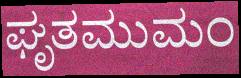
ಘೃತಮುಮಂ